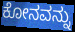
ಕೋನವನ್ನು